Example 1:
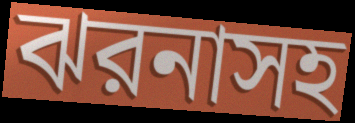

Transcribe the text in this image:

ঝরনাসহ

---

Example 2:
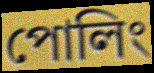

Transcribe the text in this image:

পোলিং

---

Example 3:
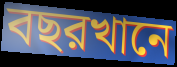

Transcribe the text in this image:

বছরখানে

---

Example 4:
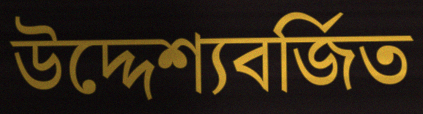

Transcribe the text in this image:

উদ্দেশ্যবর্জিত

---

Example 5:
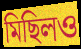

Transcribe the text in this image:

মিছিলও